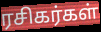
ரசிகர்கள்